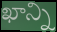
ఖాన్ని